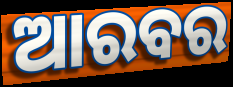
ଆରବର